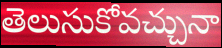
తెలుసుకోవచ్చునా